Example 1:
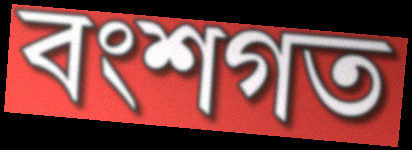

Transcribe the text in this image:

বংশগত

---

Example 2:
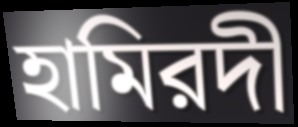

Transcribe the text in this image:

হামিরদী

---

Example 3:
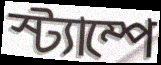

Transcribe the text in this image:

স্ট্যাম্পে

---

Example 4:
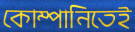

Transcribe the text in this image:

কোম্পানিতেই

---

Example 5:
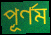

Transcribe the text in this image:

পূর্ণম